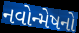
નવોન્મેષનો